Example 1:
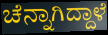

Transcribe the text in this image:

ಚೆನ್ನಾಗಿದ್ದಾಳೆ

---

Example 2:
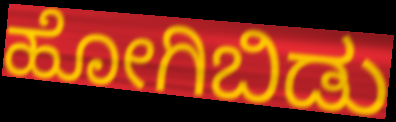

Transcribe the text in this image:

ಹೋಗಿಬಿಡು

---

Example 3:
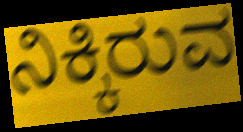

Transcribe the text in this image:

ನಿಕ್ಕಿರುವ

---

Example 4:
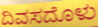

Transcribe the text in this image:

ದಿವಸದೊಳು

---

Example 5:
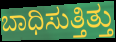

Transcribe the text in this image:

ಬಾಧಿಸುತ್ತಿತ್ತು